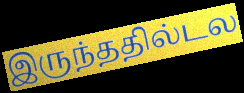
இருந்ததில்டல